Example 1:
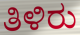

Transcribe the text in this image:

ತಿಳಿರು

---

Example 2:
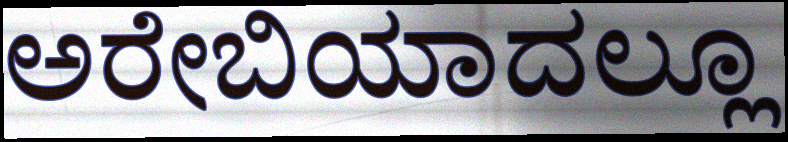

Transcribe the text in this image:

ಅರೇಬಿಯಾದಲ್ಲೂ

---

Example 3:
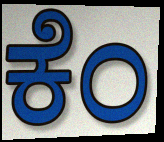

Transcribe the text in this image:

ಕೆಂ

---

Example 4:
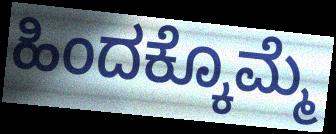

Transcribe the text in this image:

ಹಿಂದಕ್ಕೊಮ್ಮೆ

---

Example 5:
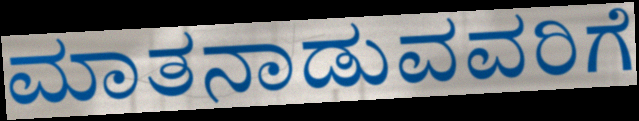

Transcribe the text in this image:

ಮಾತನಾಡುವವರಿಗೆ